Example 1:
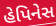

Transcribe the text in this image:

હેપિનેસ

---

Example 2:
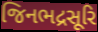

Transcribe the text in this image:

જિનભદ્રસૂરિ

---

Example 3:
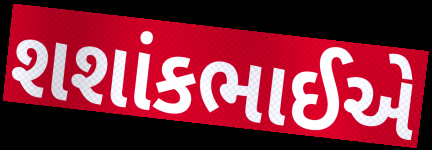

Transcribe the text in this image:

શશાંકભાઈએ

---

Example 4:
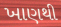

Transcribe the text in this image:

ખાણથી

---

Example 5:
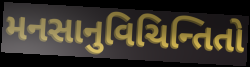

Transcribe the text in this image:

મનસાનુવિચિન્તિતો